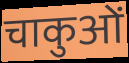
चाकुओं